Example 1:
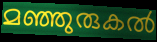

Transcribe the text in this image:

മഞ്ഞുരുകൽ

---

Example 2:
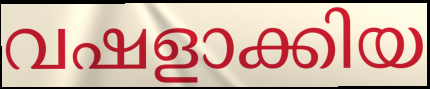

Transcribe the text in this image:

വഷളാക്കിയ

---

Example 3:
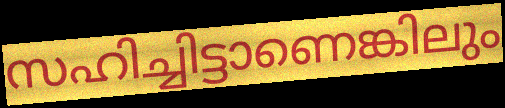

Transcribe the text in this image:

സഹിച്ചിട്ടാണെങ്കിലും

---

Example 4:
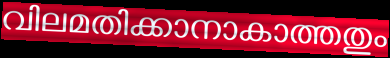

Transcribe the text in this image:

വിലമതിക്കാനാകാത്തതും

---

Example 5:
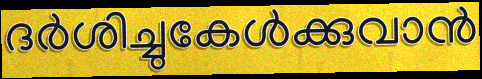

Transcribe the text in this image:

ദർശിച്ചുകേൾക്കുവാൻ